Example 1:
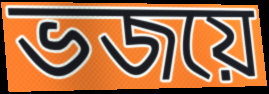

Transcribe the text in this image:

ভজয়ে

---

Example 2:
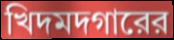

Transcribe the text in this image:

খিদমদগারের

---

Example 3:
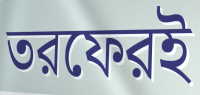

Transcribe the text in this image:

তরফেরই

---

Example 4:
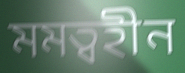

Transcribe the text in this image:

মমত্বহীন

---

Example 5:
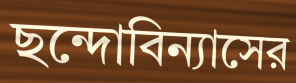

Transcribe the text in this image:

ছন্দোবিন্যাসের